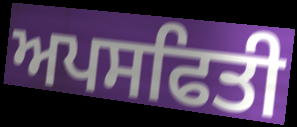
ਅਪਸਫਿਤੀ